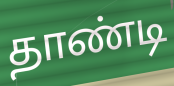
தாண்டி